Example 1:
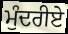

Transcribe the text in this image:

ਮੁੰਦਰੀਏ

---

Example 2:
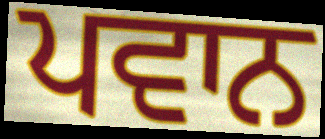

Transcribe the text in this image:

ਪਵਾਨ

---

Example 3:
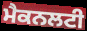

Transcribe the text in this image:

ਮੈਕਨਲਟੀ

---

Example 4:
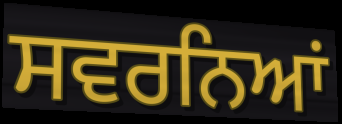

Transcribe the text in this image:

ਸਵਰਨਿਆਂ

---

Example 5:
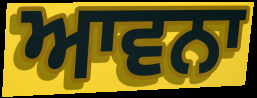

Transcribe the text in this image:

ਆਵਨਾ